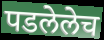
पडलेलेच